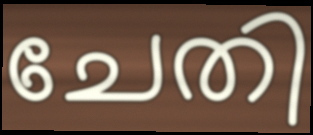
ചേതി